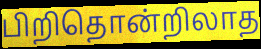
பிறிதொன்றிலாத